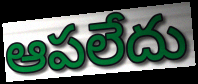
ఆపలేదు